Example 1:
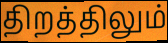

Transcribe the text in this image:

திறத்திலும்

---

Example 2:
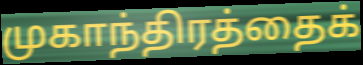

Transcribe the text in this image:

முகாந்திரத்தைக்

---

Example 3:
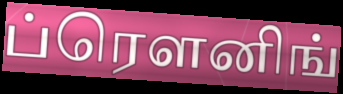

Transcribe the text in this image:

ப்ரௌனிங்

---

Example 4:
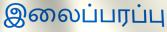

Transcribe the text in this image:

இலைப்பரப்பு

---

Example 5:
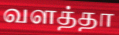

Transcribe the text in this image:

வளத்தா